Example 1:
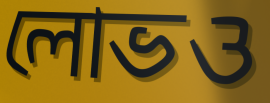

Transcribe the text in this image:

লোভও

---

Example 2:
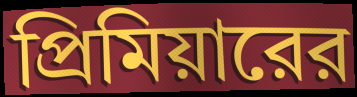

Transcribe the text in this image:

প্রিমিয়ারের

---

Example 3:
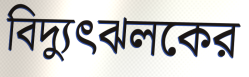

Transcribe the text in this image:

বিদ্যুৎঝলকের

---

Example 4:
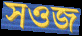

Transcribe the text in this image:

সওজ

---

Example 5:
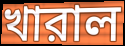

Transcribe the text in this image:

খারাল